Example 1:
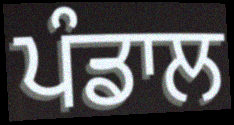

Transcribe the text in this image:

ਪੰਡਾਲ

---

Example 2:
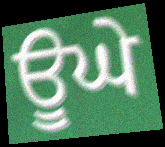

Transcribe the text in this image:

ਊਘੇ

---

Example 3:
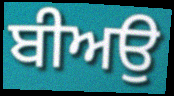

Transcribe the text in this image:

ਬੀਅਉ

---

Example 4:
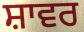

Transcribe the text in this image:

ਸ਼ਾਵਰ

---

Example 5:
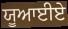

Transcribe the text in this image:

ਯੂਆਈਏ